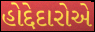
હોદ્દેદારોએ